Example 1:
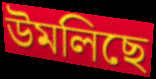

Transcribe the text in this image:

উমলিছে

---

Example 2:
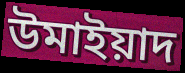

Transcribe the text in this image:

উমাইয়াদ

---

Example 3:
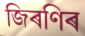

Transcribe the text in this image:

জিৰণিৰ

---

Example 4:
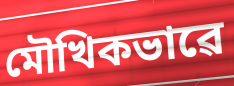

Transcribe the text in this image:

মৌখিকভাৱে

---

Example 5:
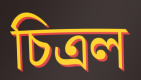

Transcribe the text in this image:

চিত্ৰল